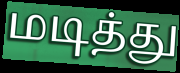
மடித்து